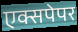
एक्सपेपर